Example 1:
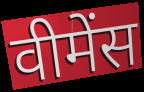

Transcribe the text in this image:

वीमेंस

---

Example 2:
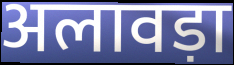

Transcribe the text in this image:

अलावड़ा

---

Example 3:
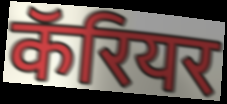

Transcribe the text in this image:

कॅरियर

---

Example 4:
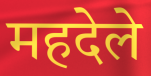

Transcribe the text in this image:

महदेले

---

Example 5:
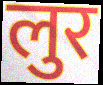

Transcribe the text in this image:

लुर